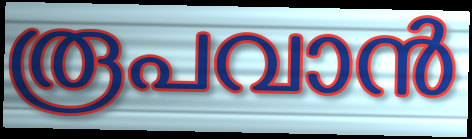
രൂപവാൻ